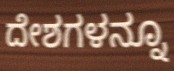
ದೇಶಗಳನ್ನೂ